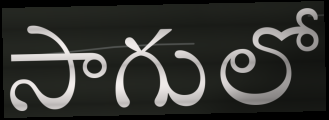
సాగులో